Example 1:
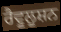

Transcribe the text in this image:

ਰੈਵੂਲੂਸ਼ਨ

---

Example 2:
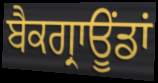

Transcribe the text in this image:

ਬੈਕਗ੍ਰਾਊਂਡਾਂ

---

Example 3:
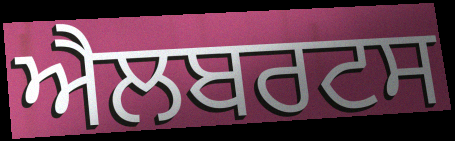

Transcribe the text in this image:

ਐਲਬਰਟਸ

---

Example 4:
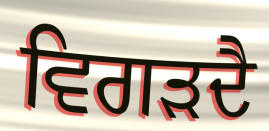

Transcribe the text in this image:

ਵਿਗੜਦੈ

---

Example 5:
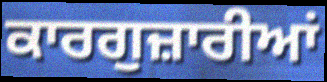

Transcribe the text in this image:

ਕਾਰਗੁਜ਼ਾਰੀਆਂ